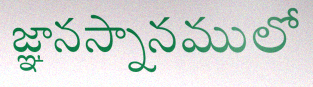
జ్ఞానస్నానములో